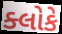
ક્લોકે